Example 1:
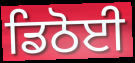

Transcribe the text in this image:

ਡਿਠੋਈ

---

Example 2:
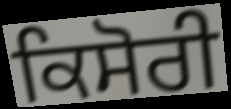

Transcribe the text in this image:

ਕਿਸੋਰੀ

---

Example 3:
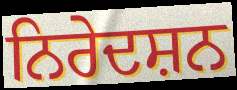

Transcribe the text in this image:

ਨਿਰੇਦਸ਼ਨ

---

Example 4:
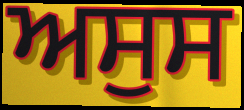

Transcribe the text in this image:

ਅਸੁਸ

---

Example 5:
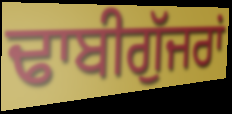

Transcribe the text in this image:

ਢਾਬੀਗੁੱਜਰਾਂ